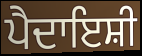
ਪੈਦਾਇਸ਼ੀ